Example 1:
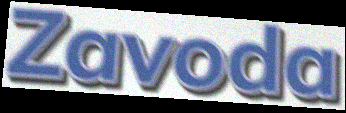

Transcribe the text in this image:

Zavoda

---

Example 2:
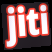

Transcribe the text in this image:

jiti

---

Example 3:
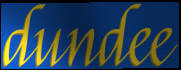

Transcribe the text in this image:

dundee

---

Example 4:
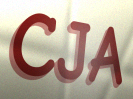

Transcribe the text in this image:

CJA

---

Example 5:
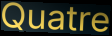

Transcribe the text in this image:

Quatre